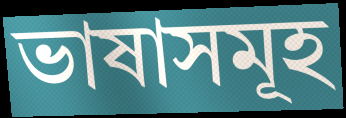
ভাষাসমূহ